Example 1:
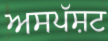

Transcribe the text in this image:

ਅਸਪੱਸ਼ਟ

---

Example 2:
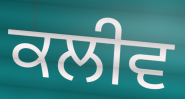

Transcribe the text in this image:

ਕਲੀਵ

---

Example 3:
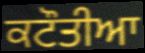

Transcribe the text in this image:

ਕਟੌਤੀਆ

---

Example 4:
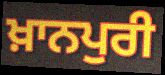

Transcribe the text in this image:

ਖ਼ਾਨਪੁਰੀ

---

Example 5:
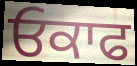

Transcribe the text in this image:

ਓਕਾਫ